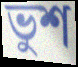
ভুশ